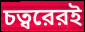
চত্বরেরই